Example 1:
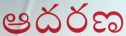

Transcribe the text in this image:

ఆదరణ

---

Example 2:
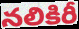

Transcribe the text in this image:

నలికిరీ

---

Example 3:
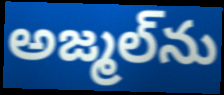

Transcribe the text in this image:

అజ్మల్‌ను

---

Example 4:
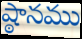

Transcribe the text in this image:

ష్ఠానము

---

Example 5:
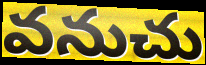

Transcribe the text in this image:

వనుచు